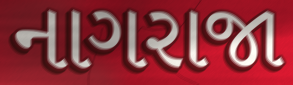
નાગરાજા